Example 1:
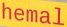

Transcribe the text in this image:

hemal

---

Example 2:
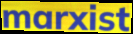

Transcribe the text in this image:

marxist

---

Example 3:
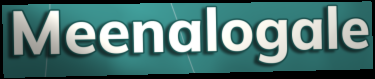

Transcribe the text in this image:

Meenalogale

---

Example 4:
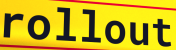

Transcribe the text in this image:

rollout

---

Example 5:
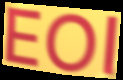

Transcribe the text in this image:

EOI